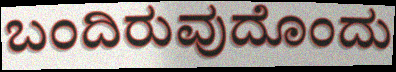
ಬಂದಿರುವುದೊಂದು